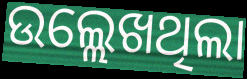
ଉଲ୍ଲେଖଥିଲା